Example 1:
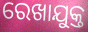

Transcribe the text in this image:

ରେଖାଯୁକ୍ତ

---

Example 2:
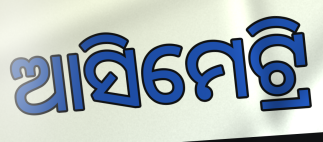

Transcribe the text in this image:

ଆସିମେଟ୍ରି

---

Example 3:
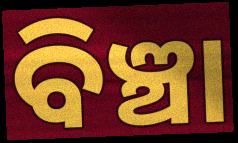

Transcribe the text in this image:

ବିଞ୍ଚା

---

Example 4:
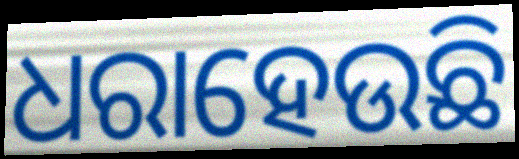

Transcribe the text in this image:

ଧରାହେଉଛି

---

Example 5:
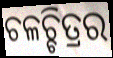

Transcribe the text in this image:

ଚଳଚ୍ଚିତ୍ରର